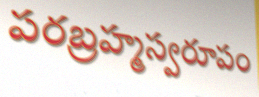
పరబ్రహ్మస్వరూపం